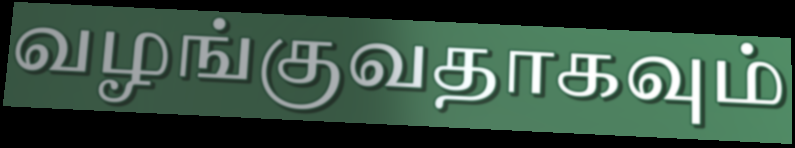
வழங்குவதாகவும்